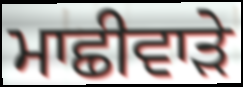
ਮਾਛੀਵਾੜੇ